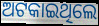
ଅଟକାଇଥିଲେ